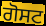
ਗੋਸਟ